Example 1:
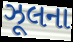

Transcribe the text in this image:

ઝૂલના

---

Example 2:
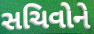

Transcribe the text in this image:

સચિવોને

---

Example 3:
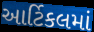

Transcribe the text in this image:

આર્ટિકલમાં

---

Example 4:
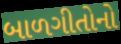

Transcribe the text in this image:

બાળગીતોનો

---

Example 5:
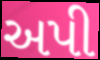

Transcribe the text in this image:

અપી